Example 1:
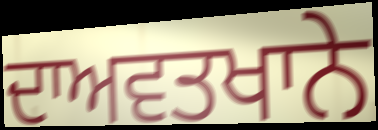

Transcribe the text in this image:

ਦਾਅਵਤਖਾਨੇ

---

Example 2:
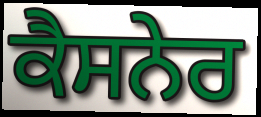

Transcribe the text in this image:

ਕੈਸਨੇਰ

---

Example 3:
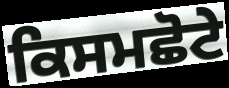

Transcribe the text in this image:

ਕਿਸਮਛੋਟੇ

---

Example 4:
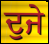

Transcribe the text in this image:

ਦੁਜੇ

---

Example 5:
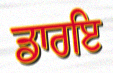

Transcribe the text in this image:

ਡਾਰਇ